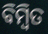
ବିମ୍ବିତ